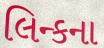
લિન્કના